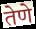
तेणे